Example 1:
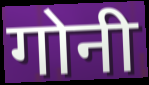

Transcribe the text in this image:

गोनी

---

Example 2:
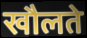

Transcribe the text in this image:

खौलते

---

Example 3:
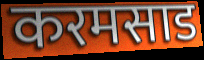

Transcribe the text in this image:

करमसाड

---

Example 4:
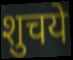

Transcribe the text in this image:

शुचये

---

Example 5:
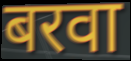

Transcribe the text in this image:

बरवा